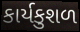
કાર્યકુશળ